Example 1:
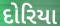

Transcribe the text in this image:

દોરિયા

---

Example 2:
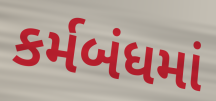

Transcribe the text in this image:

કર્મબંધમાં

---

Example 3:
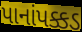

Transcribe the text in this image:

પાનાંપક્કડ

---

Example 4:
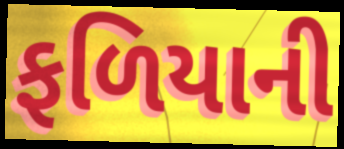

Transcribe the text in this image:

ફળિયાની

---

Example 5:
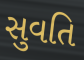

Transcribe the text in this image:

સુવતિ